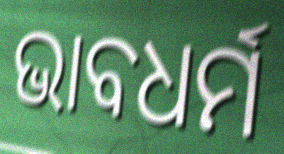
ଭାବଧର୍ମ